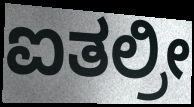
ಐತಲ್ರೀ